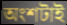
অংশটাই